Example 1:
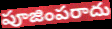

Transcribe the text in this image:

పూజింపరాదు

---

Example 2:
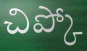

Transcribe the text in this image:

చిప్కో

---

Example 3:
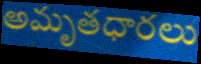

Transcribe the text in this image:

అమృతధారలు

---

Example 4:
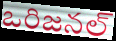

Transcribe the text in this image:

ఒరిజనల్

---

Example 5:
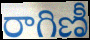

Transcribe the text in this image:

రాగిణీ